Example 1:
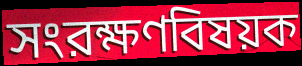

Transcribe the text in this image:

সংরক্ষণবিষয়ক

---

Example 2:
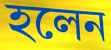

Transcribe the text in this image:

হলেন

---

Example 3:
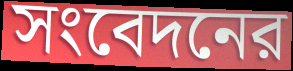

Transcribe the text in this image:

সংবেদনের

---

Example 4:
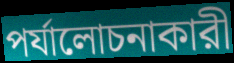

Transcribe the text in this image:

পর্যালোচনাকারী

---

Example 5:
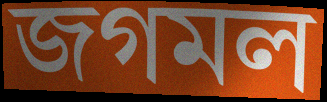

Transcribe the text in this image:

জগমল